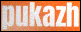
pukazh